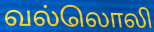
வல்லொலி